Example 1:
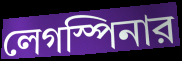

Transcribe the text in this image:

লেগস্পিনার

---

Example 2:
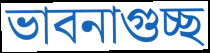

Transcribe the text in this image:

ভাবনাগুচ্ছ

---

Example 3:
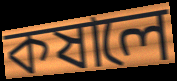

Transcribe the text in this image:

কষালে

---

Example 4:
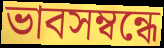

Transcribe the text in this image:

ভাবসম্বন্ধে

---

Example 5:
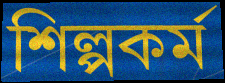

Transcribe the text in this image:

শিল্পকর্ম